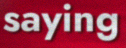
saying